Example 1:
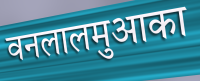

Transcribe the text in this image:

वनलालमुआका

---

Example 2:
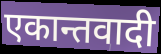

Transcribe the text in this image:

एकान्तवादी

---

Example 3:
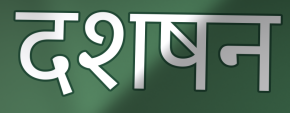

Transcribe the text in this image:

दशषन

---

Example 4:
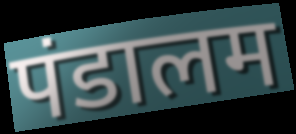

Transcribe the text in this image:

पंडालम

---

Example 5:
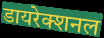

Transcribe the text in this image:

डायरेक्शनल